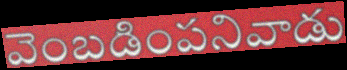
వెంబడింపనివాడు